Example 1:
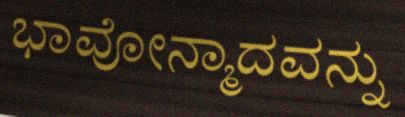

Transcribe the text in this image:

ಭಾವೋನ್ಮಾದವನ್ನು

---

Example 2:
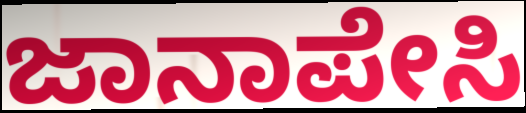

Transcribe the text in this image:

ಜಾನಾಪೇಸಿ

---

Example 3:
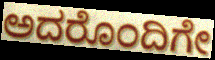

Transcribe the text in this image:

ಅದರೊಂದಿಗೇ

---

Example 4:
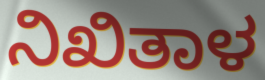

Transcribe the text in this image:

ನಿಖಿತಾಳ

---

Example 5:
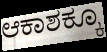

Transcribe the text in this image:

ಆಕಾಶಕ್ಕೂ